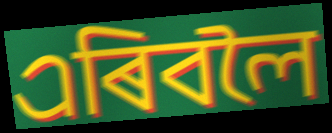
এৰিবলৈ